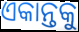
ଏକାନ୍ତକୁ